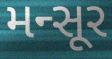
મન્સૂર